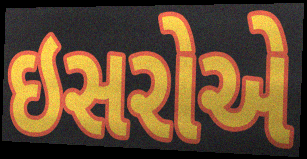
ઇસરોએ